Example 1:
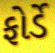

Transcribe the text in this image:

ફોર્ડે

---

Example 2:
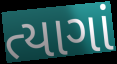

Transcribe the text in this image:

ત્યાગાં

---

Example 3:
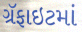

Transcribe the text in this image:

ગ્રૅફાઇટમાં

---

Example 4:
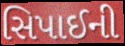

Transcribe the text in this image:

સિપાઈની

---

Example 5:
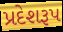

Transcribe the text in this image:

પ્રદેશરૂપ